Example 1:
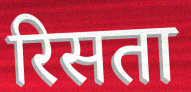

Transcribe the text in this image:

रिसता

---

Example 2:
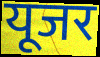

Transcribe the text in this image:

यूजर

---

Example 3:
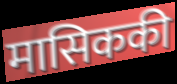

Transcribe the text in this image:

मासिककी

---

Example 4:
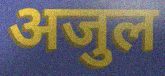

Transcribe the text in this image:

अजुल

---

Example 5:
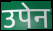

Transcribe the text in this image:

उपेन